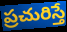
ప్రచురిస్తే